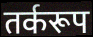
तर्करूप